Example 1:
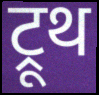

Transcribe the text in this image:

ट्रूथ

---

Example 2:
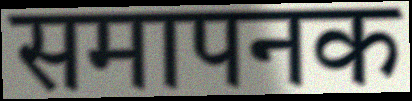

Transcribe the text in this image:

समापनक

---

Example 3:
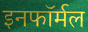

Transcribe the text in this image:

इनफॉर्मल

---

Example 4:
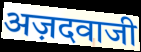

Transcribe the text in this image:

अज़दवाजी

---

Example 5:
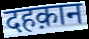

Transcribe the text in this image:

दहक़ान